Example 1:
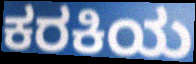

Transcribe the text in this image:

ಕರಕಿಯ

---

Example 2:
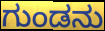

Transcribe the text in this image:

ಗುಂಡನು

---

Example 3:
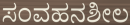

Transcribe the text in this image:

ಸಂವಹನಶೀಲ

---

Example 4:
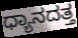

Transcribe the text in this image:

ಧ್ಯಾನದತ್ತ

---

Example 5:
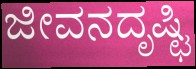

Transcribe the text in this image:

ಜೀವನದೃಷ್ಟಿ